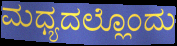
ಮಧ್ಯದಲ್ಲೊಂದು